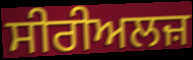
ਸੀਰੀਅਲਜ਼